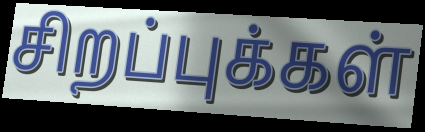
சிறப்புக்கள்